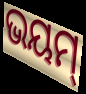
ଭୟମ୍